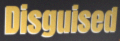
Disguised